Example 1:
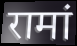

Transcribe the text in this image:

रामां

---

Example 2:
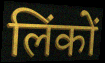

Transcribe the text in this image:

लिंकों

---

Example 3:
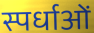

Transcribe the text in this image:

स्‍पर्धाओं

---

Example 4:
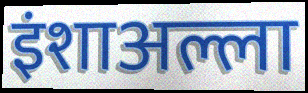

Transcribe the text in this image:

इंशाअल्ला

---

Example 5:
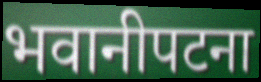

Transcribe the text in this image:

भवानीपटना